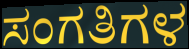
ಸಂಗತಿಗಳ